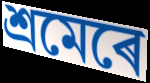
শ্ৰমেৰে